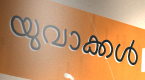
യുവാക്കൾ